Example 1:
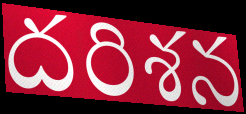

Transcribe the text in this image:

దరిశన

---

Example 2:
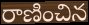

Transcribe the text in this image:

రాణించిన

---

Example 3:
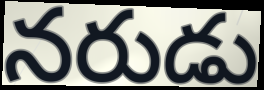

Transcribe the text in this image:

నరుడు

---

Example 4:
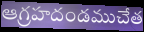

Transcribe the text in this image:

ఆగ్రహదండముచేత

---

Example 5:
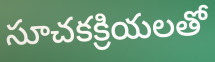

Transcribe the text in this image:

సూచకక్రియలతో